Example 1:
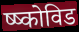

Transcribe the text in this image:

ष्ष्कोविड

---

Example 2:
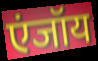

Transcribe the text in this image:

एंजॉय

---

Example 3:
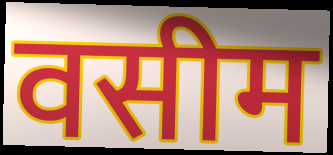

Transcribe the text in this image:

वसीम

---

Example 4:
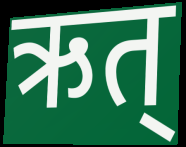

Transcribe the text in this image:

ऋत्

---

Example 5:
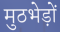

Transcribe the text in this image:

मुठभेड़ों